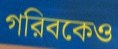
গরিবকেও